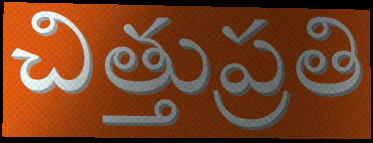
చిత్తుప్రతి